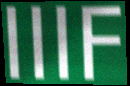
IIIF